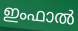
ഇംഫാൽ